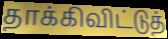
தாக்கிவிட்டுத்